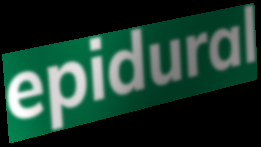
epidural